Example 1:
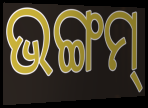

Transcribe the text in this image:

ଭଙ୍ଗମ୍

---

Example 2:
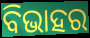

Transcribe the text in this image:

ବିଭାହର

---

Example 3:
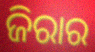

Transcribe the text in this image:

ଜିରାର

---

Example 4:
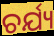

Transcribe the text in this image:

ଚର୍ଯ୍ୟ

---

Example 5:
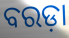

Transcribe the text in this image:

ବରଡ଼ା